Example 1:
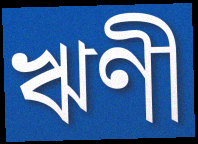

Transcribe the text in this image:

ঋণী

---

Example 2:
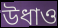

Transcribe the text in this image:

উধাও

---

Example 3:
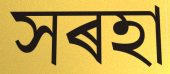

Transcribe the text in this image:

সৰহা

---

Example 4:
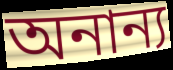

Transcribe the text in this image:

অনান্য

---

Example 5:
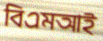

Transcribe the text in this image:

বিএমআই